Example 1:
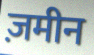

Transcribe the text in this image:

ज़मीन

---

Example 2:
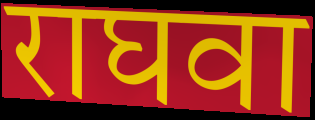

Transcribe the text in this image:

राघवा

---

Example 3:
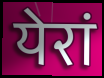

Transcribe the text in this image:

येरां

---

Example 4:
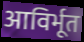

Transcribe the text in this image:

आविर्भूत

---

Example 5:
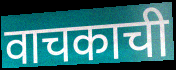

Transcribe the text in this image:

वाचकाची